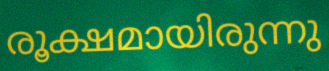
രൂക്ഷമായിരുന്നു